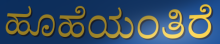
ಹೂಹೆಯಂತಿರೆ